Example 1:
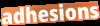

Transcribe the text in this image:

adhesions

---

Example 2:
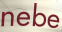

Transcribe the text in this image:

nebe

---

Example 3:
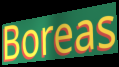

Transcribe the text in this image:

Boreas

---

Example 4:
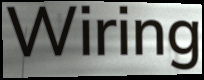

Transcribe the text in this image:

Wiring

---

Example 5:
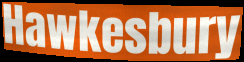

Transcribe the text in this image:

Hawkesbury